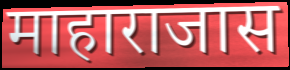
माहाराजास